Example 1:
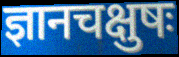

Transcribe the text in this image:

ज्ञानचक्षुषः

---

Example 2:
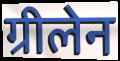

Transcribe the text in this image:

ग्रीलेन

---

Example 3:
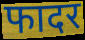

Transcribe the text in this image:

फादर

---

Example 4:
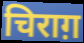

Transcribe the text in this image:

चिराग़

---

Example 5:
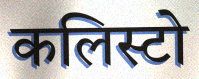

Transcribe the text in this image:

कलिस्टो